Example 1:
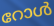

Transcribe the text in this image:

റോൾ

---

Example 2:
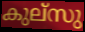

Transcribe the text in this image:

കുല്സു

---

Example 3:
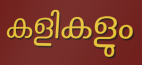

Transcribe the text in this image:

കളികളും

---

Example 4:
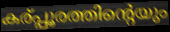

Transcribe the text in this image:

കര്പ്പൂരത്തിന്റെയും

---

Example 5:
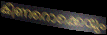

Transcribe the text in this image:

കിണറൊക്കെയും